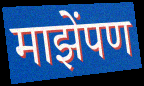
माझेंपण